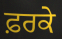
ਫ਼ਰਕੇ